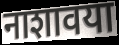
नाशावया